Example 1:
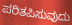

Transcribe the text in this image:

ಪರಿತಪಿಸುವುದು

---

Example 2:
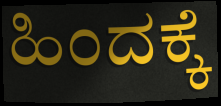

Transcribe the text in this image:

ಹಿಂದಕ್ಕೆ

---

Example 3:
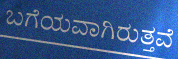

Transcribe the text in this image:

ಬಗೆಯವಾಗಿರುತ್ತವೆ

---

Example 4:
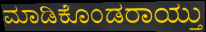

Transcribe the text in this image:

ಮಾಡಿಕೊಂಡರಾಯ್ತು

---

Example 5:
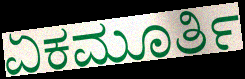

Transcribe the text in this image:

ಏಕಮೂರ್ತಿ